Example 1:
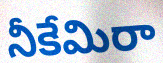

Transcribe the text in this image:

నీకేమిరా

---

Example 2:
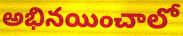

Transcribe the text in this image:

అభినయించాలో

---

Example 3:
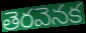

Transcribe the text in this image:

తెరవెనక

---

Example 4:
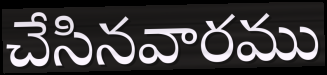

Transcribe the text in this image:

చేసినవారము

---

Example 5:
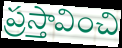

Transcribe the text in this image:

ప్రస్తావించి